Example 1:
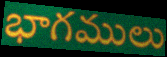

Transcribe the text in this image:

భాగములు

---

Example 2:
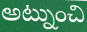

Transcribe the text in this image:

అట్నుంచి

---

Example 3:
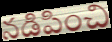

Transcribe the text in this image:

నడిపించి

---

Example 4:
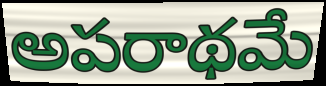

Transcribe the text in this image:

అపరాథమే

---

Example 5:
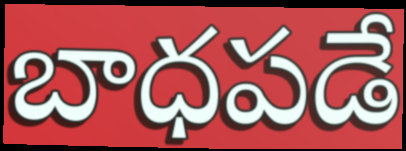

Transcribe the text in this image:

బాధపడే